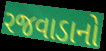
રજવાડાનો